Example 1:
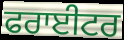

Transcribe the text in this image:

ਫਰਾਈਟਰ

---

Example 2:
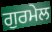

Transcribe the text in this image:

ਗੁਰਮੇਲ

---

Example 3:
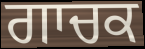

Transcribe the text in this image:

ਗਾਚਕ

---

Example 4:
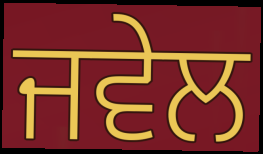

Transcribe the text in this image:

ਜਵੇਲ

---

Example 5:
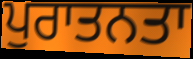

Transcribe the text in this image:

ਪੁਰਾਤਨਤਾ